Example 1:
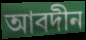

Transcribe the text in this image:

আবদীন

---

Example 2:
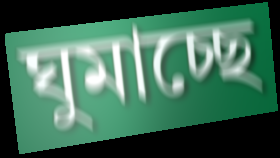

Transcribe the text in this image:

ঘুমাচ্ছে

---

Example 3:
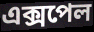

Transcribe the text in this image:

এক্সপেল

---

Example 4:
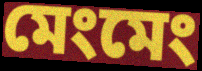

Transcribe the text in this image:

মেংমেং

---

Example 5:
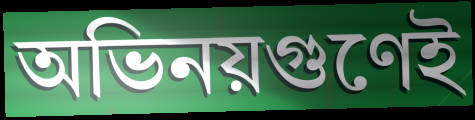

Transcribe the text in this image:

অভিনয়গুণেই